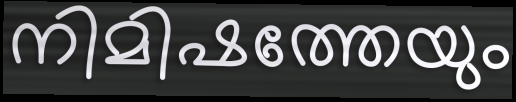
നിമിഷത്തേയും